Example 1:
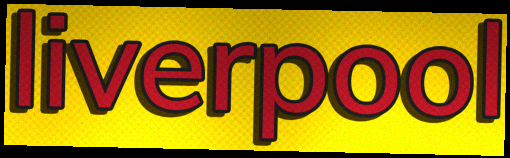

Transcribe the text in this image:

liverpool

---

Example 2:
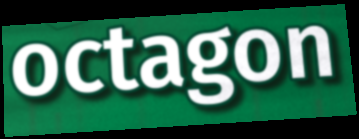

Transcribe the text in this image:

octagon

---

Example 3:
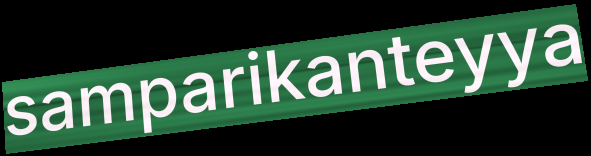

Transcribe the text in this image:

samparikanteyya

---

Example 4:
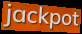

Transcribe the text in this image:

jackpot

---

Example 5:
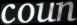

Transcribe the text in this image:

coun